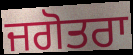
ਜਗੋਤਰਾ